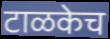
टाळकेच